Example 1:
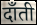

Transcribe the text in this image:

दाँती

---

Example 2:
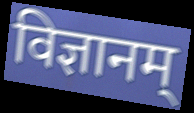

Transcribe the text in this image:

विज्ञानम्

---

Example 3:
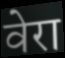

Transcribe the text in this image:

वेरा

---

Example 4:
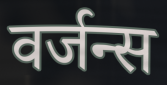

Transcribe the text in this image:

वर्जन्स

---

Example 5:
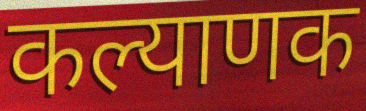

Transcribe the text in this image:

कल्याणक